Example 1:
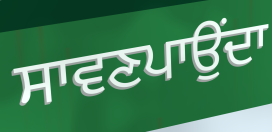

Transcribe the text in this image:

ਸਾਵਣਪਾਉਂਦਾ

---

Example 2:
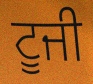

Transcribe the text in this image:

ਟੂਜੀ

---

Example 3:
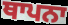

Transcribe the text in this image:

ਥਾਪਨਾ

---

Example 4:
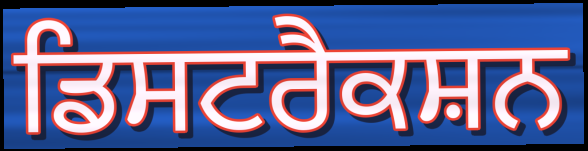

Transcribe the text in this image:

ਡਿਸਟਰੈਕਸ਼ਨ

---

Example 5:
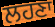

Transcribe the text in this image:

ਲਹਣਾ